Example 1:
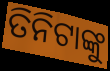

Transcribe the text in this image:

ତିନିଟାଙ୍କୁ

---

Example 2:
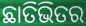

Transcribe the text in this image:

ଛାତିଭିତର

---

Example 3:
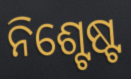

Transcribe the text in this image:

ନିଶ୍ଟେଷ୍ଟ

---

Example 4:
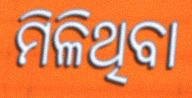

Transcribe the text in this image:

ମିଳିଥିବା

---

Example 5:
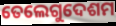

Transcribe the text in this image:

ତେଲେଗୁଦେଶମ